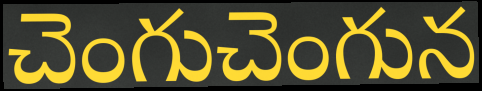
చెంగుచెంగున